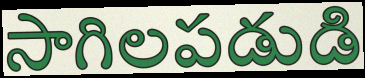
సాగిలపడుడి